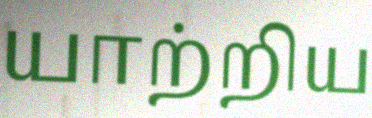
யாற்றிய